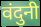
वंदुनी